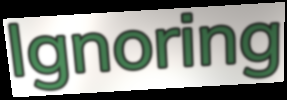
Ignoring